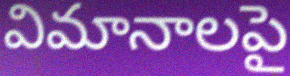
విమానాలపై